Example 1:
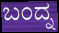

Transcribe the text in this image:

ಬಂದ್ನ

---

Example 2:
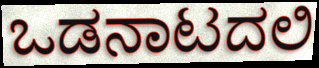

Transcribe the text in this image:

ಒಡನಾಟದಲಿ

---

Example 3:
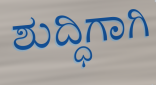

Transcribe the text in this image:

ಶುದ್ಧಿಗಾಗಿ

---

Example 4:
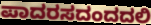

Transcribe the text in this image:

ಪಾದರಸದಂದದಲಿ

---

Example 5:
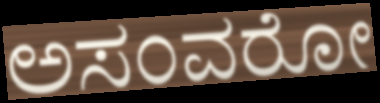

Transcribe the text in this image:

ಅಸಂವರೋ